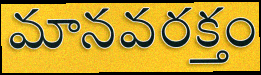
మానవరక్తం